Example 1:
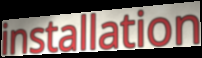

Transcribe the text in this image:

installation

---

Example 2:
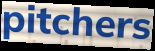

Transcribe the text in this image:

pitchers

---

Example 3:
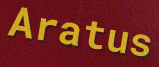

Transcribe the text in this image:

Aratus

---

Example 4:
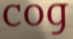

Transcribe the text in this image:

cog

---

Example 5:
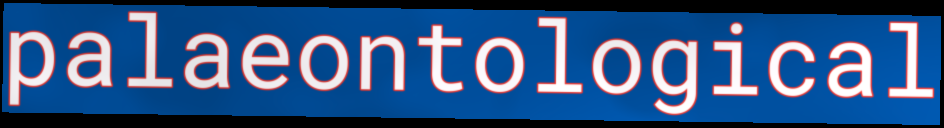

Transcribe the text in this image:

palaeontological